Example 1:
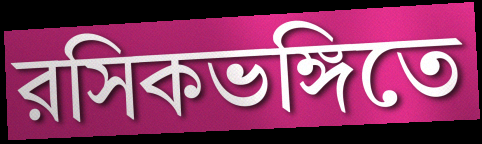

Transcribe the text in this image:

রসিকভঙ্গিতে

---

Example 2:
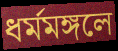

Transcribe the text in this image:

ধর্মমঙ্গলে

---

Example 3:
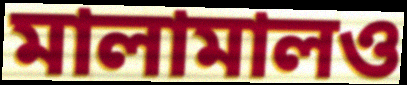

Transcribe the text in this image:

মালামালও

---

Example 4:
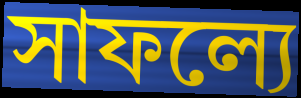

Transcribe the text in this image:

সাফল্যে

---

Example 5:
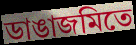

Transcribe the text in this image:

ডাঙাজমিতে